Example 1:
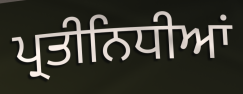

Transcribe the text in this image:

ਪ੍ਰਤੀਨਿਧੀਆਂ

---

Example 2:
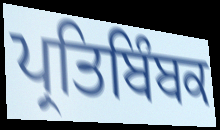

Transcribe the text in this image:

ਪ੍ਰਤਿਬਿੰਬਕ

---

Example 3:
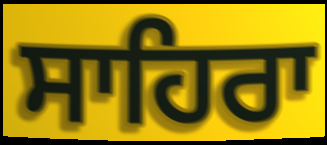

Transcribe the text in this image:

ਸਾਹਿਰਾ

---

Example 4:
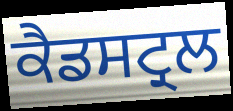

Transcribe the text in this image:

ਕੈਡਸਟ੍ਰਲ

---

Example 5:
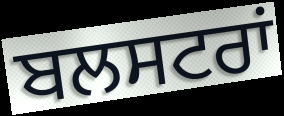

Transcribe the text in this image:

ਬਲਸਟਰਾਂ